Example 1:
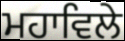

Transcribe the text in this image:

ਮਹਾਵਿਲੇ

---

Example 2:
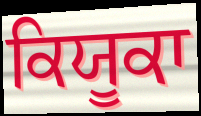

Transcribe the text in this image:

ਕਿਯੂਕਾ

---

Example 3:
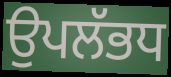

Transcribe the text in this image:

ਉਪਲੱਭਧ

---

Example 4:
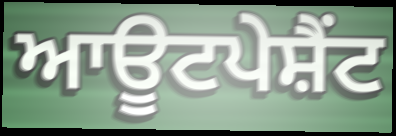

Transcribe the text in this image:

ਆਊਟਪੇਸ਼ੈਂਟ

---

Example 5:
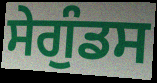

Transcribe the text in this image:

ਸੇਗੁੰਡਸ